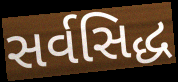
સર્વસિદ્ધ